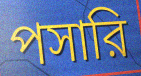
পসারি